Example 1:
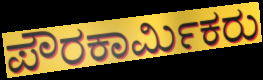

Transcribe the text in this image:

ಪೌರಕಾರ್ಮಿಕರು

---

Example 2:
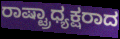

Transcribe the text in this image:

ರಾಷ್ಟ್ರಾಧ್ಯಕ್ಷರಾದ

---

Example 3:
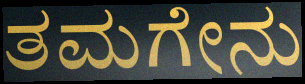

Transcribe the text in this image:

ತಮಗೇನು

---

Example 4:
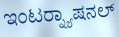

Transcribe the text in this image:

ಇಂಟರ್‍ನ್ಯಾಷನಲ್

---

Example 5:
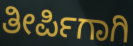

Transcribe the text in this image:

ತೀರ್ಪಿಗಾಗಿ